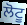
ਲੋਟੂ